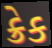
ક્રેક